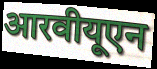
आरवीयूएन